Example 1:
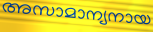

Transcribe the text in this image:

അസാമാന്യനായ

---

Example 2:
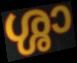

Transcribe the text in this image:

ശ്ശാ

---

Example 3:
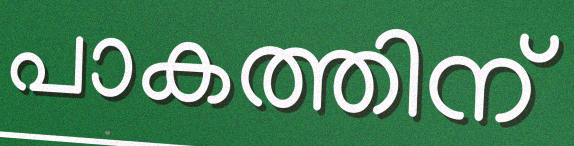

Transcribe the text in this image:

പാകത്തിന്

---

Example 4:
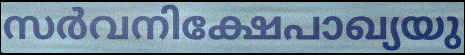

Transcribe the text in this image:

സർവനിക്ഷേപാഖ്യയു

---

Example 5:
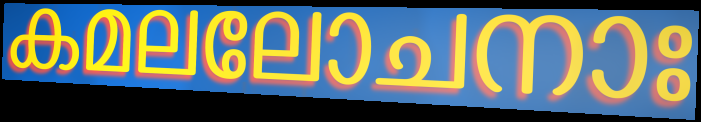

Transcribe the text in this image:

കമലലോചനാഃ